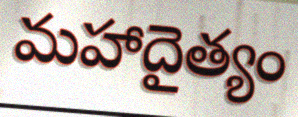
మహాదైత్యం